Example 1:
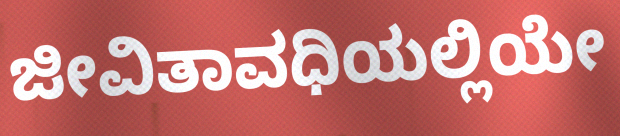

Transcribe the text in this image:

ಜೀವಿತಾವಧಿಯಲ್ಲಿಯೇ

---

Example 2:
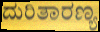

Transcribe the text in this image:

ದುರಿತಾರಣ್ಯ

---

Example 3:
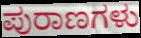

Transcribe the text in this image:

ಪುರಾಣಗಳು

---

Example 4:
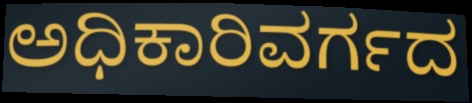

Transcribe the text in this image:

ಅಧಿಕಾರಿವರ್ಗದ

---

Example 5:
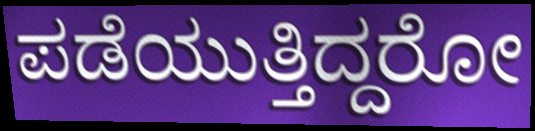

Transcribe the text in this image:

ಪಡೆಯುತ್ತಿದ್ದರೋ